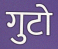
गुटो